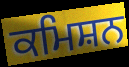
ਕਮਿਸ਼ਨ